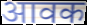
आवक